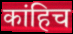
कांहिच